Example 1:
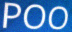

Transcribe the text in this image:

POO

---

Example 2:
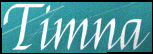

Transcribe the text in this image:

Timna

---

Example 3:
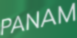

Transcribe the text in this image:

PANAM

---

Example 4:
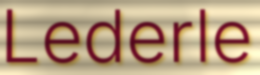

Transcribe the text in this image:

Lederle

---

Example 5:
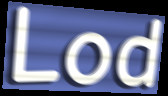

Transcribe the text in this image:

Lod